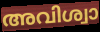
അവിശ്വാ